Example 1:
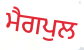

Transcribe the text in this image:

ਮੈਗਪੁਲ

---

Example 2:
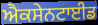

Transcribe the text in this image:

ਐਕਸੇਨਟਾਈਡ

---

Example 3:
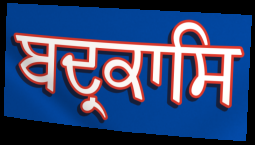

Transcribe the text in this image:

ਬਦ੍ਰਕਾਸਿ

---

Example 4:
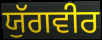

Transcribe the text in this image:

ਯੁੱਗਵੀਰ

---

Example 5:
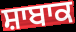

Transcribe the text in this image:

ਸ਼ਾਬਾਕ